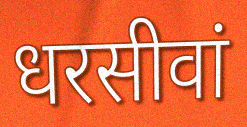
धरसीवां